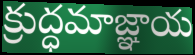
క్రుద్ధమాజ్ఞాయ